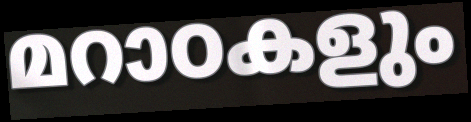
മറാഠകളും